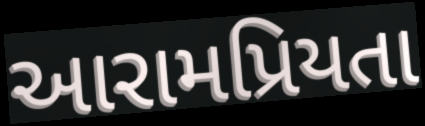
આરામપ્રિયતા